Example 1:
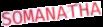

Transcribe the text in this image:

SOMANATHA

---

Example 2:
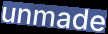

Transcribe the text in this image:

unmade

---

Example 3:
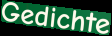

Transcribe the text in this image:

Gedichte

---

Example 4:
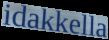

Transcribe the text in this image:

idakkella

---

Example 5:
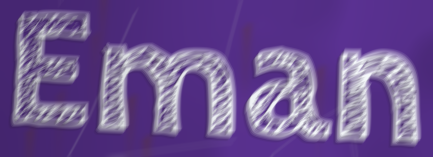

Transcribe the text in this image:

Eman